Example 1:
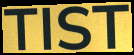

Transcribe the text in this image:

TIST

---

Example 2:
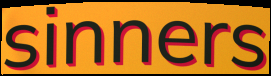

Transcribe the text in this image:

sinners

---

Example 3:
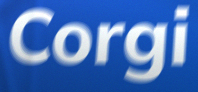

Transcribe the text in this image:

Corgi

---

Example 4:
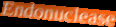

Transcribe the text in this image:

Endonuclease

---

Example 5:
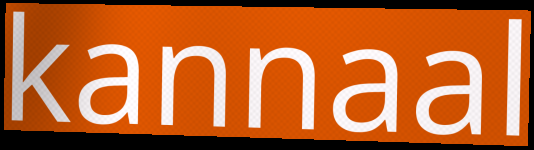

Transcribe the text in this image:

kannaal